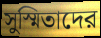
সুস্মিতাদের